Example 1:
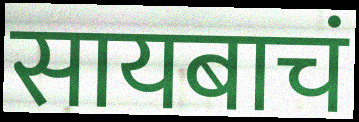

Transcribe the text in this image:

सायबाचं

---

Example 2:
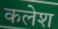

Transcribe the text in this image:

कलेश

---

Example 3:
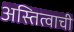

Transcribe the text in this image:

अस्तित्वाची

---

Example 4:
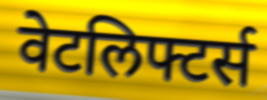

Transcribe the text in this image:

वेटलिफ्टर्स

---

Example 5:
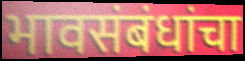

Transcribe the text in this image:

भावसंबंधांचा